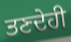
ਤਣਦੇਹੀ